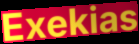
Exekias